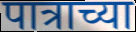
पात्राच्‍या